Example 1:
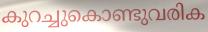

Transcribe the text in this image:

കുറച്ചുകൊണ്ടുവരിക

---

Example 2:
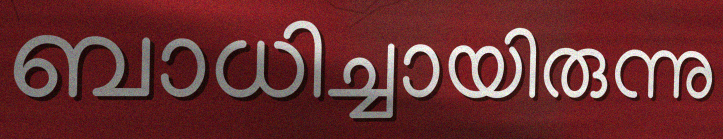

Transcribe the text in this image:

ബാധിച്ചായിരുന്നു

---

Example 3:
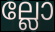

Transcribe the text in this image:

ല്ലോ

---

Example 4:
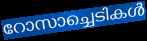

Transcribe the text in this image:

റോസാച്ചെടികൾ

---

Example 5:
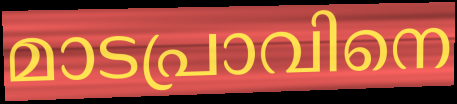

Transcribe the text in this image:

മാടപ്രാവിനെ